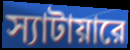
স্যাটায়ারে